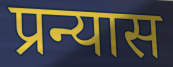
प्रन्यास